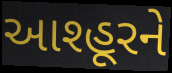
આશ્હૂરને